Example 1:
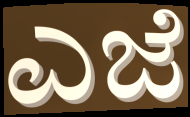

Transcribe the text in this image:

ಎಜೆ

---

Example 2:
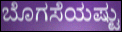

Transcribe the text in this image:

ಬೊಗಸೆಯಷ್ಟು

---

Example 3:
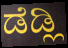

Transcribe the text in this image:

ಡೆಡ್ಲಿ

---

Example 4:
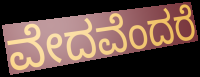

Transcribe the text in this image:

ವೇದವೆಂದರೆ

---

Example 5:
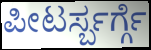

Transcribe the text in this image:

ಪೀಟರ್ಸ್ಬರ್ಗ್ಗೆ